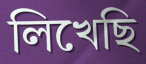
লিখেছি